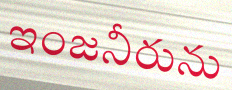
ఇంజనీరును